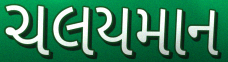
ચલયમાન